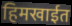
हिमखाईत